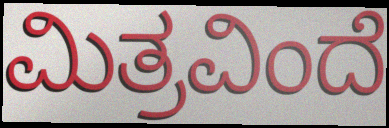
ಮಿತ್ರವಿಂದೆ